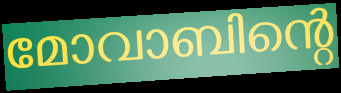
മോവാബിന്റെ